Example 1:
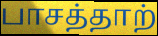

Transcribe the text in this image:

பாசத்தாற்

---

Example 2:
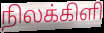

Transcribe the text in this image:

நிலக்கிளி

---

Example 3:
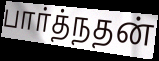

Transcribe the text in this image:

பார்த்நதன்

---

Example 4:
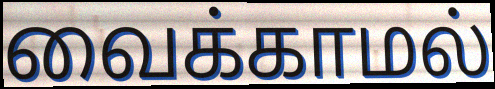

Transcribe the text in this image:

வைக்காமல்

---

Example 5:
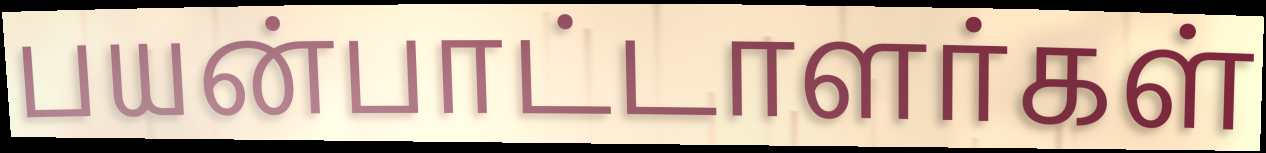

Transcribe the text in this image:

பயன்பாட்டாளர்கள்